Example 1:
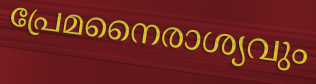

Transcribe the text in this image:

പ്രേമനൈരാശ്യവും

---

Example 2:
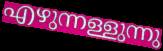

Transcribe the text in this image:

എഴുന്നള്ളുന്നു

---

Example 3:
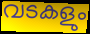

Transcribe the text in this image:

വടകളും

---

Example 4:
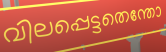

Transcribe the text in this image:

വിലപ്പെട്ടതെന്തോ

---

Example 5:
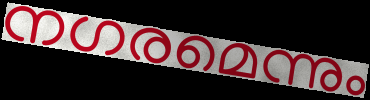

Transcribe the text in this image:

നഗരമെന്നും